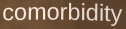
comorbidity